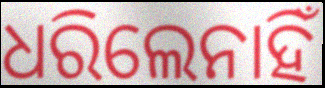
ଧରିଲେନାହିଁ